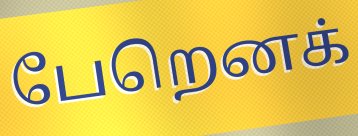
பேறெனக்